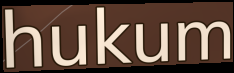
hukum